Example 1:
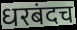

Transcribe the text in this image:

धरबंदच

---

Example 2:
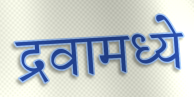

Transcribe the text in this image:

द्रवामध्ये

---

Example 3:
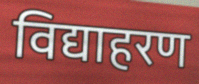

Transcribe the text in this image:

विद्याहरण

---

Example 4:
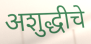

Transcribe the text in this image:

अशुद्धीचे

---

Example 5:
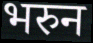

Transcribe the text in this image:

भरुन